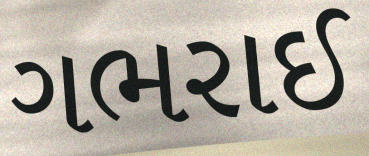
ગભરાઈ